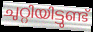
ചുറ്റിയിട്ടുണ്ട്